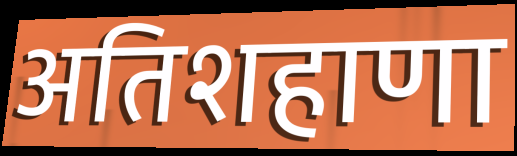
अतिशहाणा